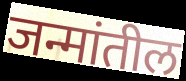
जन्मांतील